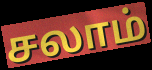
சலாம்